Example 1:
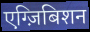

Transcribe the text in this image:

एग्ज़िबिशन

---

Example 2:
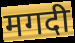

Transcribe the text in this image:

मगदी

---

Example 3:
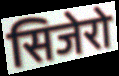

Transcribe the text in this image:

सिजेरो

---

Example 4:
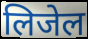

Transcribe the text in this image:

लिजेल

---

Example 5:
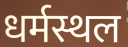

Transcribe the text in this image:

धर्मस्थल